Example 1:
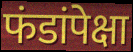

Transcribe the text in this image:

फंडांपेक्षा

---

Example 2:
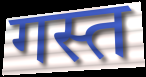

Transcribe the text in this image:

गस्त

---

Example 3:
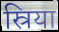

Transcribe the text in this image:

स्रिया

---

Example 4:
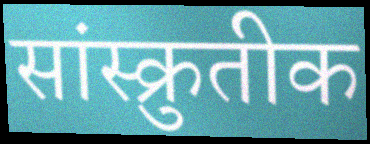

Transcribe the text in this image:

सांस्क्रुतीक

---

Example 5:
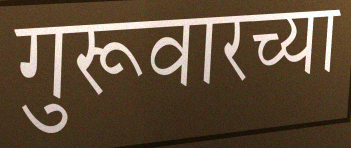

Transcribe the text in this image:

गुरूवारच्या